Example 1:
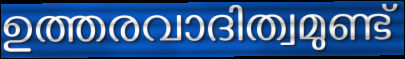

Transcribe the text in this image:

ഉത്തരവാദിത്വമുണ്ട്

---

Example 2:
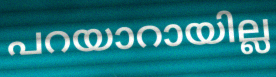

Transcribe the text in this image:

പറയാറായില്ല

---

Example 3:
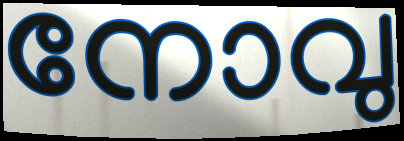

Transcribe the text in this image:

നോവു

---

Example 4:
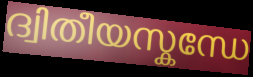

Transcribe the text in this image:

ദ്വിതീയസ്കന്ധേ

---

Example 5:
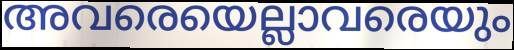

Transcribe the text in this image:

അവരെയെല്ലാവരെയും